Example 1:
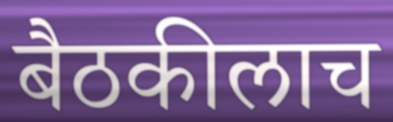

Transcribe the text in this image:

बैठकीलाच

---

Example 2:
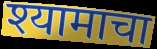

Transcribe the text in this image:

श्यामाचा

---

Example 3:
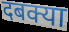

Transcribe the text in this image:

दबक्या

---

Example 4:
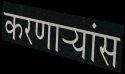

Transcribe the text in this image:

करणाऱ्यांस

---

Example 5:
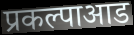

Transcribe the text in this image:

प्रकल्पाआड